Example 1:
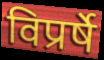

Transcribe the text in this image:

विप्रर्षे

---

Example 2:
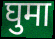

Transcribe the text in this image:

घुमा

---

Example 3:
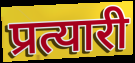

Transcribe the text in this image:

प्रत्यारी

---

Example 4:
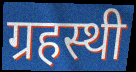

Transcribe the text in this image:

ग्रहस्थी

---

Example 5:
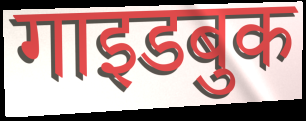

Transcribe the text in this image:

गाइडबुक